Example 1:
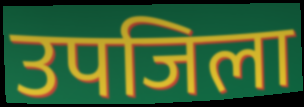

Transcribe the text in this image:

उपजिला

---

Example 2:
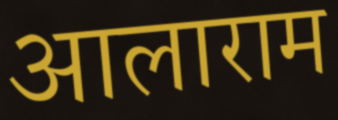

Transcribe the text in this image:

आलाराम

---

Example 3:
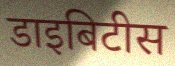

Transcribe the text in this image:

डाइबिटीस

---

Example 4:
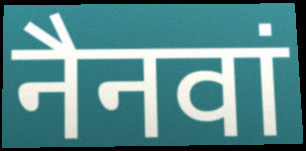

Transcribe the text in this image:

नैनवां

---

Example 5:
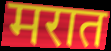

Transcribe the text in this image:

मरात